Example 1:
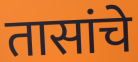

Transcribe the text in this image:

तासांचे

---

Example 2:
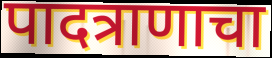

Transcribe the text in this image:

पादत्राणाचा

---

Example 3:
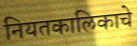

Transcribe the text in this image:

नियतकालिकाचे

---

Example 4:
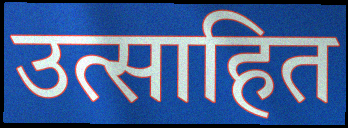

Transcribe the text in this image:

उत्साहित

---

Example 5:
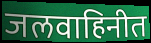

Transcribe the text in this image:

जलवाहिनीत